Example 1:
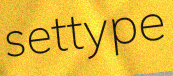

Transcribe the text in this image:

settype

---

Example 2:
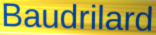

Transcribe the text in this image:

Baudrilard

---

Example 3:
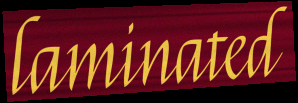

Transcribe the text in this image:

laminated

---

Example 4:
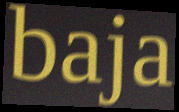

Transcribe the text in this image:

baja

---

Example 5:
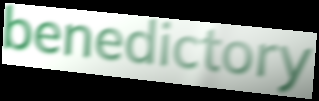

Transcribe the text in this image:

benedictory